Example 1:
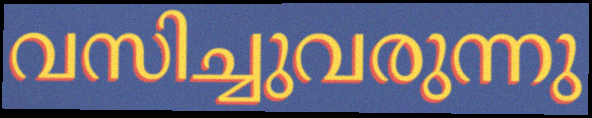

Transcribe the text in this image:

വസിച്ചുവരുന്നു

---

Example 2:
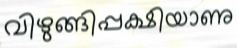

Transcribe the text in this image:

വിഴുങ്ങിപ്പക്ഷിയാണു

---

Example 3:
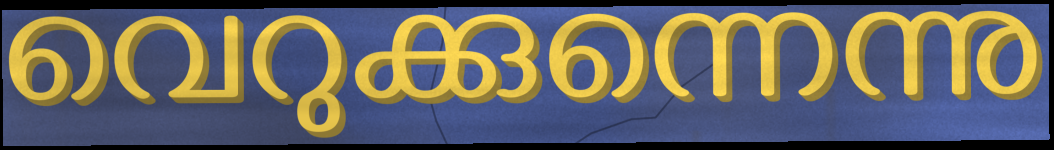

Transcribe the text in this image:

വെറുക്കുന്നെന്നു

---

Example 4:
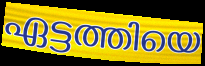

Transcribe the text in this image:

ഏട്ടത്തിയെ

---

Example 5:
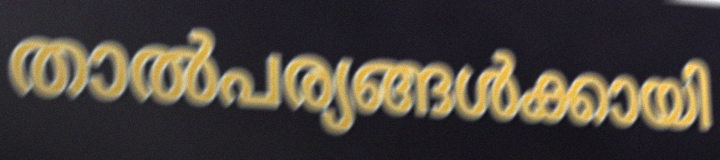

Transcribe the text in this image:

താൽപര്യങ്ങൾക്കായി